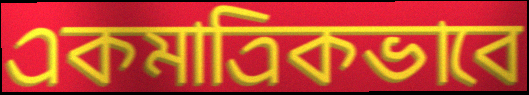
একমাত্রিকভাবে